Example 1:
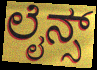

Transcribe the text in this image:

ಲೈನ್ಸ್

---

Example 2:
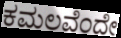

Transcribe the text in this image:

ಕಮಲವೆಂದೇ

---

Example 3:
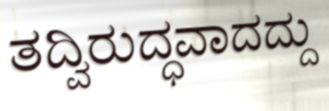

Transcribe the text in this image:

ತದ್ವಿರುದ್ಧವಾದದ್ದು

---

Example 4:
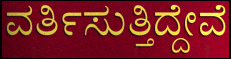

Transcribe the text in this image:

ವರ್ತಿಸುತ್ತಿದ್ದೇವೆ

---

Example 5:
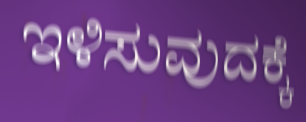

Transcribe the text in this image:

ಇಳಿಸುವುದಕ್ಕೆ